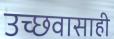
उच्छवासाही